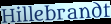
Hillebrandt